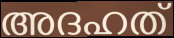
അദഹത്